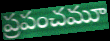
ప్రపంచమూ